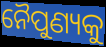
ନୈପୁଣ୍ୟକୁ